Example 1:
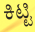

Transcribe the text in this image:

ಕಿಟ್ಟಿ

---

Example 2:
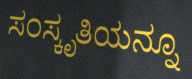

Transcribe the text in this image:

ಸಂಸ್ಕೃತಿಯನ್ನೂ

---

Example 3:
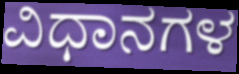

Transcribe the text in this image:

ವಿಧಾನಗಳ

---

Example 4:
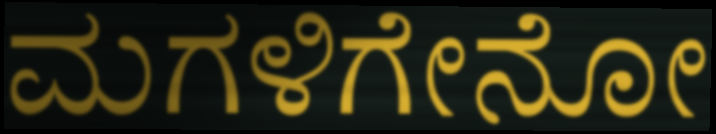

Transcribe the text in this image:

ಮಗಳಿಗೇನೋ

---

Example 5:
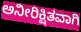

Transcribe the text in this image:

ಅನೀರಿಕ್ಷಿತವಾಗಿ